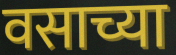
वसाच्या